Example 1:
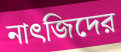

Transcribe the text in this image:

নাৎজিদের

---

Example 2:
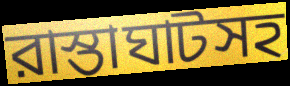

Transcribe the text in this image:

রাস্তাঘাটসহ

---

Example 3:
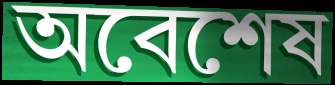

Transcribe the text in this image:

অবেশেষ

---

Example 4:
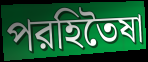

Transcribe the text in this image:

পরহিতৈষা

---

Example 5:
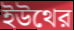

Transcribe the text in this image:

ইউথের